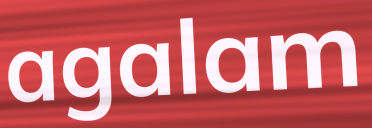
agalam